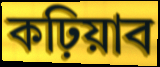
কঢ়িয়াব